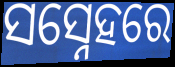
ସସ୍ନେହରେ